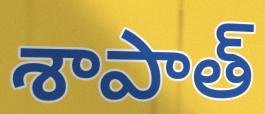
శాపాత్